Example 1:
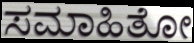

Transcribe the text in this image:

ಸಮಾಹಿತೋ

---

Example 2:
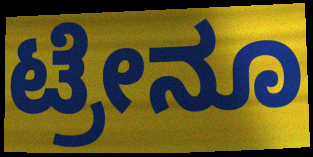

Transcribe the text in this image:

ಟ್ರೇನೂ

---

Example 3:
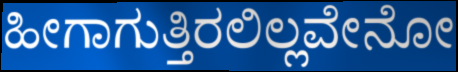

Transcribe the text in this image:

ಹೀಗಾಗುತ್ತಿರಲಿಲ್ಲವೇನೋ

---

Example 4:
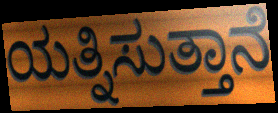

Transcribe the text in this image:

ಯತ್ನಿಸುತ್ತಾನೆ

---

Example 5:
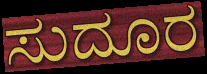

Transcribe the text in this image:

ಸುದೂರ